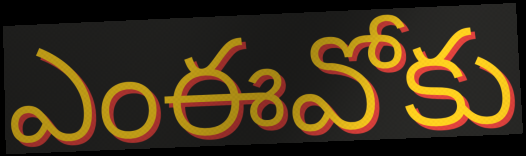
ఎంఈవోకు